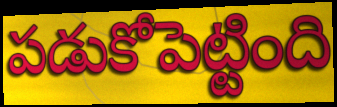
పడుకోపెట్టింది